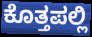
ಕೊತ್ತಪಲ್ಲಿ